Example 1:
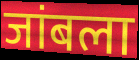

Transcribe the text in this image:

जांबला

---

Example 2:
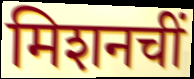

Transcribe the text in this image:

मिशनचीं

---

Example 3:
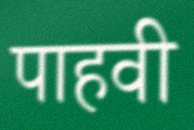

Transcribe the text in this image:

पाहवी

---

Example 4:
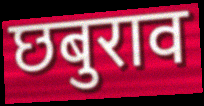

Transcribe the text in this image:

छबुराव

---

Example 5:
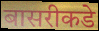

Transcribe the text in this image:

बासरीकडे